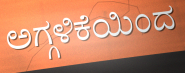
ಅಗ್ಗಳಿಕೆಯಿಂದ